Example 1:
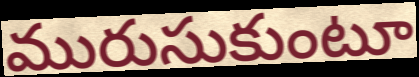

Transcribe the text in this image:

మురుసుకుంటూ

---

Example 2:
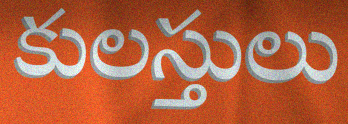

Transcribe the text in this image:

కులస్తులు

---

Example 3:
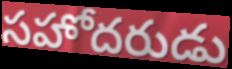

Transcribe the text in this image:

సహోదరుడు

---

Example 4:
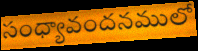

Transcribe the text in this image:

సంధ్యావందనములో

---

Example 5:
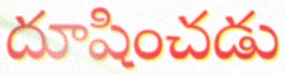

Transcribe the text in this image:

దూషించడు